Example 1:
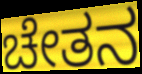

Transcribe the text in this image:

ಚೇತನ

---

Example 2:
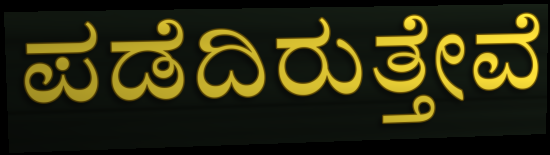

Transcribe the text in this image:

ಪಡೆದಿರುತ್ತೇವೆ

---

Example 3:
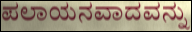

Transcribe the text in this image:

ಪಲಾಯನವಾದವನ್ನು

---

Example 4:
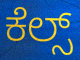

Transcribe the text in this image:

ಕೆಲ್ಸ್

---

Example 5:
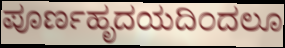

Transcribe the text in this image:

ಪೂರ್ಣಹೃದಯದಿಂದಲೂ